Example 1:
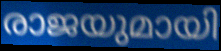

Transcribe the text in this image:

രാജയുമായി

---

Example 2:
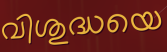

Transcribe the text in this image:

വിശുദ്ധയെ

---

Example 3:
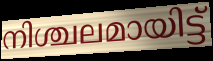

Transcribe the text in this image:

നിശ്ചലമായിട്ട്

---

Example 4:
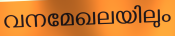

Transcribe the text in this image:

വനമേഖലയിലും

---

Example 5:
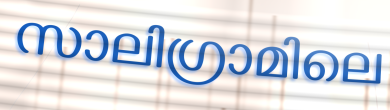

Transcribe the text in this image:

സാലിഗ്രാമിലെ